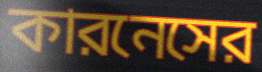
কারনেসের